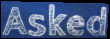
Asked